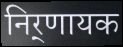
निर्णायक